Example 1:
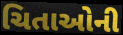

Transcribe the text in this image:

ચિતાઓની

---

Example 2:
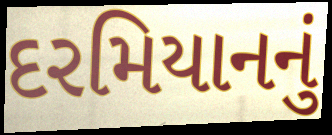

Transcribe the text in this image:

દરમિયાનનું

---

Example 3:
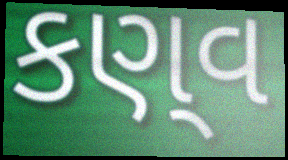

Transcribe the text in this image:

કણ્‌વ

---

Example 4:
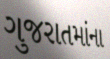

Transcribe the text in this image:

ગુજરાતમાંના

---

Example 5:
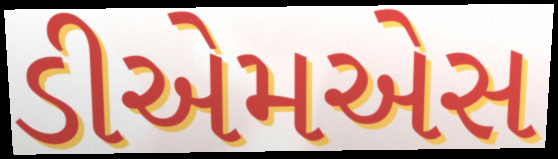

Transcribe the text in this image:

ડીએમએસ